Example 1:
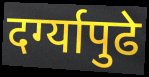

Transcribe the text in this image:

दर्ग्यापुढे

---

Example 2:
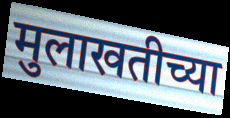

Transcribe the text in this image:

मुलाखतीच्या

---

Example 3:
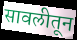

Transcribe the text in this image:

सावलीतून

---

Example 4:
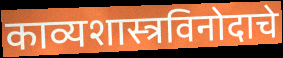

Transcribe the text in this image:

काव्यशास्त्रविनोदाचे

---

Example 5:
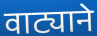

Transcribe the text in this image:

वाट्याने